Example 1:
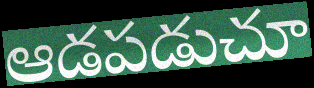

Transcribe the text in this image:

ఆడపడుచూ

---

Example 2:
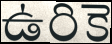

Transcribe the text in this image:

ఉరికె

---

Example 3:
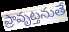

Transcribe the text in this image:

ప్రావృట్తనుతే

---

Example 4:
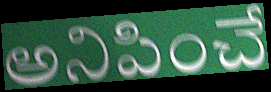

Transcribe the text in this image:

అనిపించే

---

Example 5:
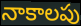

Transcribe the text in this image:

నాకాలపు